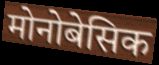
मोनोबेसिक